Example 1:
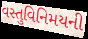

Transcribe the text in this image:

વસ્તુવિનિમયની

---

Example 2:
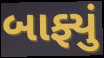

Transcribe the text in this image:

બાફ્યું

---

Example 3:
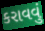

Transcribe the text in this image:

કરાવવું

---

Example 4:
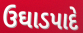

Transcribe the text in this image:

ઉઘાડપાદે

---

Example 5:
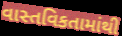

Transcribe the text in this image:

વાસ્તવિકતામાંથી